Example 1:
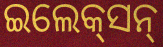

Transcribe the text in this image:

ଇଲେକ୍‌ସନ୍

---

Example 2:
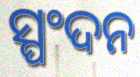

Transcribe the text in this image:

ସ୍ପଂଦନ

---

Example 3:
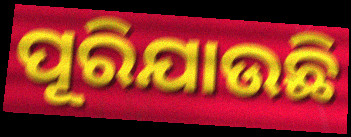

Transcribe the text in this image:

ପୂରିଯାଉଛି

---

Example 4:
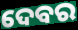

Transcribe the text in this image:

ଦେବର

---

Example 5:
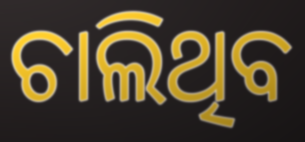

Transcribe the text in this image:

ଚାଲିଥିବ